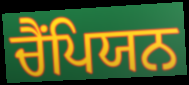
ਚੈੰਪਿਯਨ